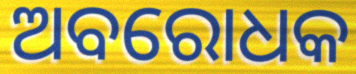
ଅବରୋଧକ